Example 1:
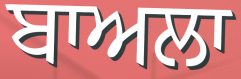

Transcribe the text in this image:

ਬਾਅਲਾ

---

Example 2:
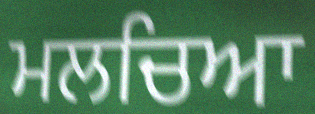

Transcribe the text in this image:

ਮਲਚਿਆ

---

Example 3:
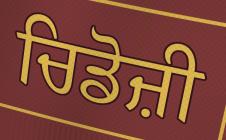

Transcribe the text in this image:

ਚਿਡੋਜ਼ੀ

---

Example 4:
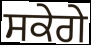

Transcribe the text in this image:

ਸਕੇਗੇ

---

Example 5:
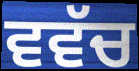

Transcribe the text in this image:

ਵਵੱਚ